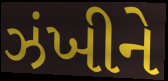
ઝંખીને